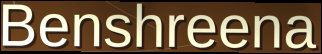
Benshreena